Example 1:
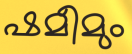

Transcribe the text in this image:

ഷമീമും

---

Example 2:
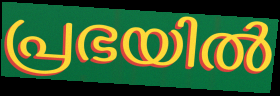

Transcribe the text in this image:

പ്രഭയിൽ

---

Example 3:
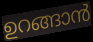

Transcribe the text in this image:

ഉറങ്ങാൻ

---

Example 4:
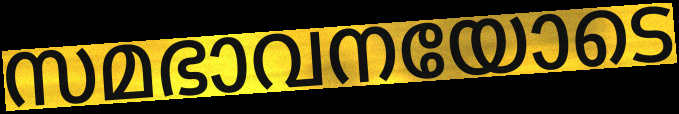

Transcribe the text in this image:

സമഭാവനയോടെ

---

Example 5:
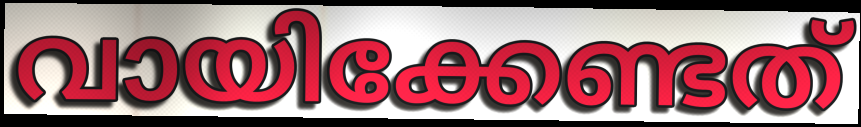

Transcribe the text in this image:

വായിക്കേണ്ടത്